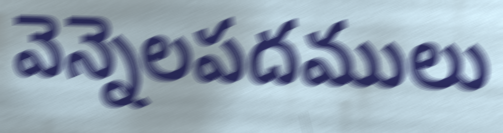
వెన్నెలపదములు